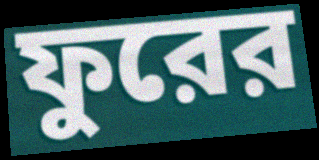
ফুরের